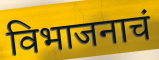
विभाजनाचं